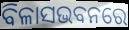
ବିଳାସଭବନରେ